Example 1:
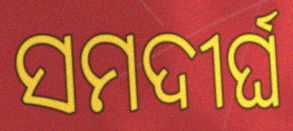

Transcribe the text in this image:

ସମଦୀର୍ଘ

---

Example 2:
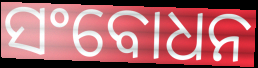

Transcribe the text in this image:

ସଂବୋଧନ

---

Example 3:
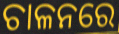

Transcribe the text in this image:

ଚାଳନରେ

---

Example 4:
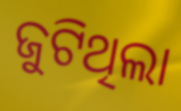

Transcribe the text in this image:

ଜୁଟିଥିଲା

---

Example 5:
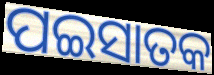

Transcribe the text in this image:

ପଇସାତକ